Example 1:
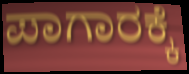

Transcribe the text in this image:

ಪಾಗಾರಕ್ಕೆ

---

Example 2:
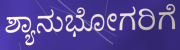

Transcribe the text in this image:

ಶ್ಯಾನುಭೋಗರಿಗೆ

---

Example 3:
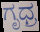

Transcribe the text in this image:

ಗೃಧ್ರ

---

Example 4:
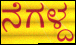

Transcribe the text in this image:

ನೆಗಳ್ದ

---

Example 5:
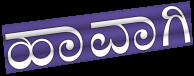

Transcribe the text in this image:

ಹಾವಾಗಿ